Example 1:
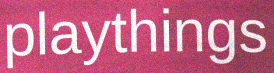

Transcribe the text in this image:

playthings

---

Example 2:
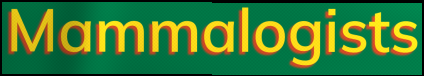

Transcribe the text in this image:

Mammalogists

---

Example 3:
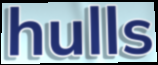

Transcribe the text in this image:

hulls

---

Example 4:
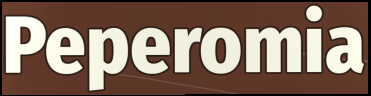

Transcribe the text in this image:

Peperomia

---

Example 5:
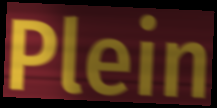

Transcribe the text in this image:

Plein